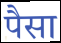
पैसा